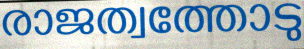
രാജത്വത്തോടു